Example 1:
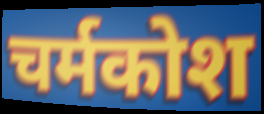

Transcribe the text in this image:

चर्मकोश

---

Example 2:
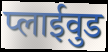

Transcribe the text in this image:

प्लाईवुड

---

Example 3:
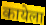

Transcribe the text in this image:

कायेला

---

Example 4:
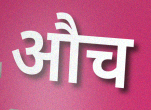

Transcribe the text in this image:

औच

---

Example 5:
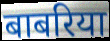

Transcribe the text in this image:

बाबरिया